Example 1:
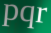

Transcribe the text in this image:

pqr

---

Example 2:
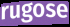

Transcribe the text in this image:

rugose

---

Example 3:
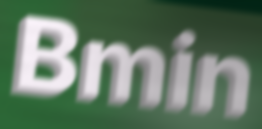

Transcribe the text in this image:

Bmin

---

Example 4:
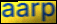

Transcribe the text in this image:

aarp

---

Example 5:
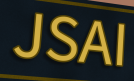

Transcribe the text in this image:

JSAI